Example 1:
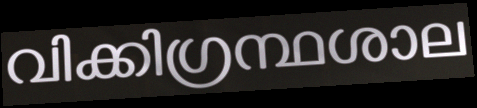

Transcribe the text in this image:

വിക്കിഗ്രന്ഥശാല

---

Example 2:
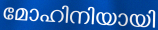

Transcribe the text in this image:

മോഹിനിയായി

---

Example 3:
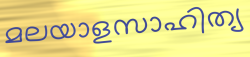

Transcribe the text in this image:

മലയാളസാഹിത്യ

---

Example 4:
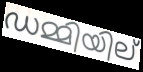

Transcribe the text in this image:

ഡമ്മിയില്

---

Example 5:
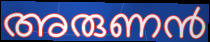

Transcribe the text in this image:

അരുണൻ